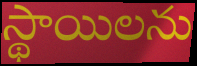
స్థాయిలను